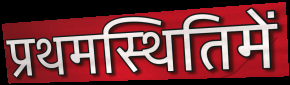
प्रथमस्थितिमें